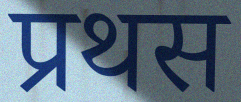
प्रथस